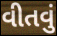
વીતવું